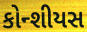
કોન્શીયસ